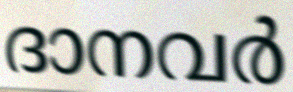
ദാനവർ